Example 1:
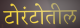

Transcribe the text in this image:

टोरंटोतील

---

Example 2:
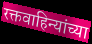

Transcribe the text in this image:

रक्तवाहिन्यांच्या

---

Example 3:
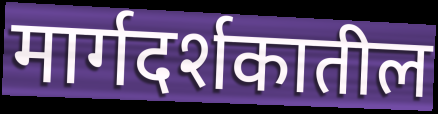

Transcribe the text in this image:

मार्गदर्शकातील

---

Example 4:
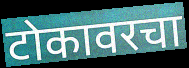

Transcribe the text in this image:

टोकावरचा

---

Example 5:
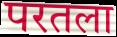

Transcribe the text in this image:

परतला